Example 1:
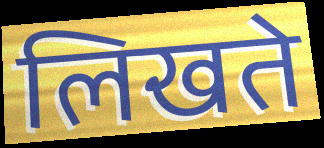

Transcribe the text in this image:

लिखते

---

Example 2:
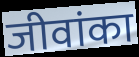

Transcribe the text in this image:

जीवांका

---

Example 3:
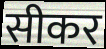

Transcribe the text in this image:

सीकर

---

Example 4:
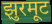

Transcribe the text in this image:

झुरमूट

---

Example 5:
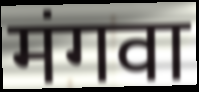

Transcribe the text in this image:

मंगवा